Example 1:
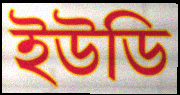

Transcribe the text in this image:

ইউডি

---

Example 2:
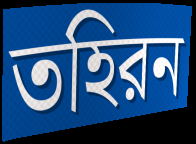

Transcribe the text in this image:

তহিরন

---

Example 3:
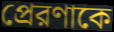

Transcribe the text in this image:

প্রেরণাকে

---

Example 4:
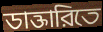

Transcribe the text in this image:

ডাক্তারিতে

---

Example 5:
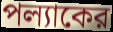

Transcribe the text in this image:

পল্যাকের